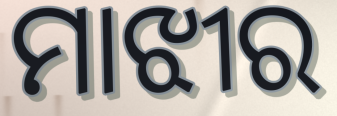
ମାଝୀର